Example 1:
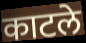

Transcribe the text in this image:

काटले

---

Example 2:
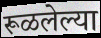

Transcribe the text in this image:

रूळलेल्या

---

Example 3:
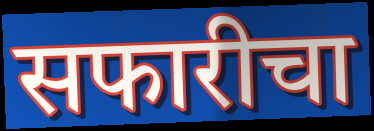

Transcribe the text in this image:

सफारीचा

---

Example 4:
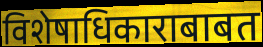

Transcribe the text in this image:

विशेषाधिकाराबाबत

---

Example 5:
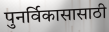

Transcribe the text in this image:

पुनर्विकासासाठी